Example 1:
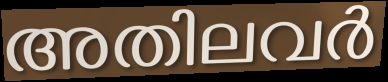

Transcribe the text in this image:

അതിലവർ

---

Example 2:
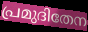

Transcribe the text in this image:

പ്രമുദിതേന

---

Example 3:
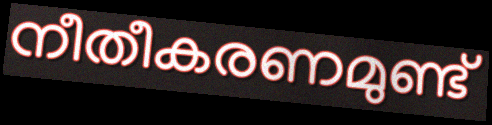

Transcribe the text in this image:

നീതീകരണമുണ്ട്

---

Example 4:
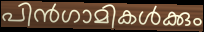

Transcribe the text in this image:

പിൻഗാമികൾക്കും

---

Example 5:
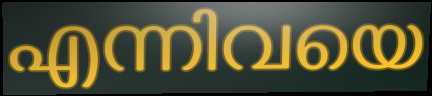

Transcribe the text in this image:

എന്നിവയെ